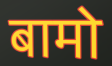
बामो